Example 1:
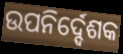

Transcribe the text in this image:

ଉପନିର୍ଦ୍ଦେଶକ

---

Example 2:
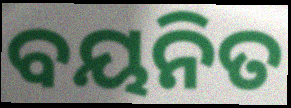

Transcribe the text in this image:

ବୟନିତ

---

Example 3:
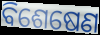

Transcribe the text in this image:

ବିଶେଷେଣ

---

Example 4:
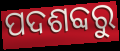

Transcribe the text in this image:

ପଦଶବ୍ଦରୁ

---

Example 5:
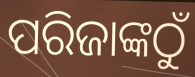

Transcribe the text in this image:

ପରିଜାଙ୍କଠୁଁ